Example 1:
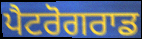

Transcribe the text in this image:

ਪੈਟਰੋਗਰਾਡ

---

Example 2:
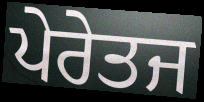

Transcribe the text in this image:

ਪੇਰੇਤਜ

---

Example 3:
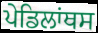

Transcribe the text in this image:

ਪੇਡਿਲਾਂਥਸ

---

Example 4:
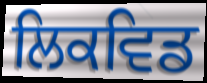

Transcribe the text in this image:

ਲਿਕਵਿਡ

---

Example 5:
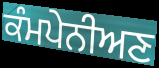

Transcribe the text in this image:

ਕੰਮਪੇਨੀਅਣ